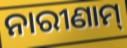
ନାରୀଣାମ୍